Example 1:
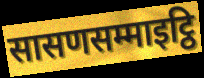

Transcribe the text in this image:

सासणसम्माइट्ठि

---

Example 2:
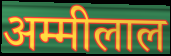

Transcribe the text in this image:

अम्मीलाल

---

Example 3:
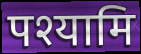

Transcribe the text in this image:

पश्यामि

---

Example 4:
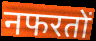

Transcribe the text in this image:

नफरतों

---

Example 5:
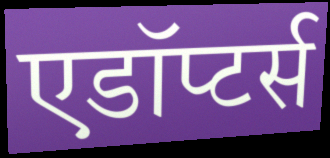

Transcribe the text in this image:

एडॉप्टर्स